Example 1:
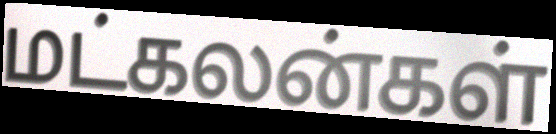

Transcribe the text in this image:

மட்கலன்கள்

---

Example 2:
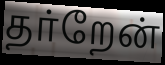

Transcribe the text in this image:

தர்றேன்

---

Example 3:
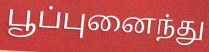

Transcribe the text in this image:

பூப்புனைந்து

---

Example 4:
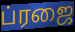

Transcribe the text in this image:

ப்ரஜை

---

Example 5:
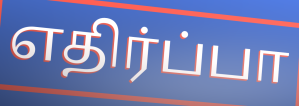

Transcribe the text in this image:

எதிர்ப்பா